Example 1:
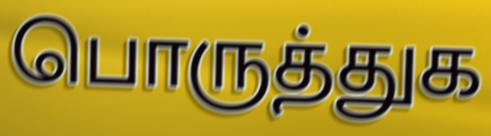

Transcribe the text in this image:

பொருத்துக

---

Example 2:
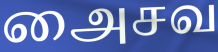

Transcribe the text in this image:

அைசவ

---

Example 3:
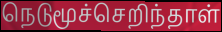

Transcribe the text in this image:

நெடுமூச்செறிந்தாள்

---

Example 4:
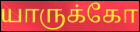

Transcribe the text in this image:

யாருக்கோ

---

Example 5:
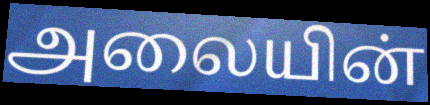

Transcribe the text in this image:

அலையின்